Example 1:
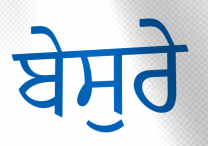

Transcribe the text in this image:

ਬੇਸੁਰੇ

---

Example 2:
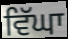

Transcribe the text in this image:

ਵਿੱਘਾ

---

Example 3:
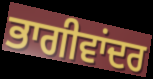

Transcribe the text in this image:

ਭਾਗੀਵਾਂਦਰ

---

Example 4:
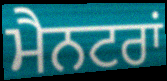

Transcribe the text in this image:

ਮੈਨਟਰਾਂ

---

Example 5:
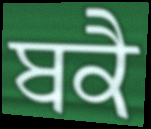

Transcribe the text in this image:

ਬਕੈ